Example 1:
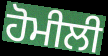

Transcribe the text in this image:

ਹੋਮੀਲੀ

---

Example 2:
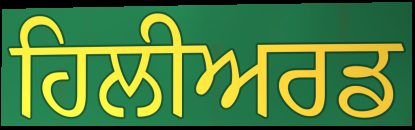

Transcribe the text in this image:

ਹਿਲੀਅਰਡ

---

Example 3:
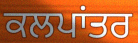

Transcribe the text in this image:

ਕਲਪਾਂਤਰ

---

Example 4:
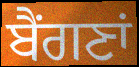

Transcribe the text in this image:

ਬੈਂਗਣਾਂ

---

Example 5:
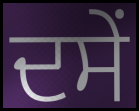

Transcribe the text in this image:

ਦਸੇਂ